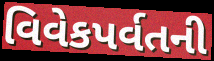
વિવેકપર્વતની